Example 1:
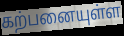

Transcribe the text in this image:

கற்பனையுள்ள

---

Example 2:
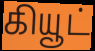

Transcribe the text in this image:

கியூட்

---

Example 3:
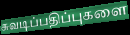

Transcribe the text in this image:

சுவடிப்பதிப்புகளை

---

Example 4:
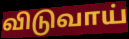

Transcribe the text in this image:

விடுவாய்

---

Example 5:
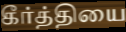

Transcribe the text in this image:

கீர்த்தியை